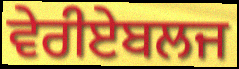
ਵੇਰੀਏਬਲਜ